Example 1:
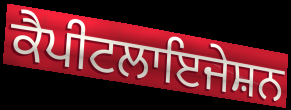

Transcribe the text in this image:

ਕੈਪੀਟਲਾਇਜੇਸ਼ਨ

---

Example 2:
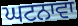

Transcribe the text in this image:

ਘਟਨਾਵਾ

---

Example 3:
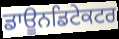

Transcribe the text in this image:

ਡਾਊਨਡਿਟੇਕਟਰ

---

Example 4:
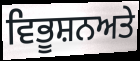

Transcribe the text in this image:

ਵਿਭੂਸ਼ਨਅਤੇ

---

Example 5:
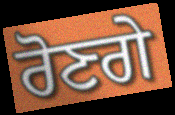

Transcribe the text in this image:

ਰੋਣਗੇ